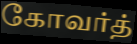
கோவர்த்